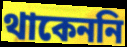
থাকেননি